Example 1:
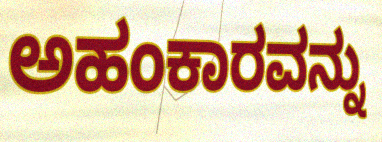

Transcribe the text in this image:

ಅಹಂಕಾರವನ್ನು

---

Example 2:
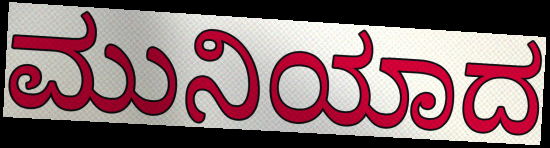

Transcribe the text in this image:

ಮುನಿಯಾದ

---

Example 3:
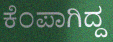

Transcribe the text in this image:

ಕೆಂಪಾಗಿದ್ದ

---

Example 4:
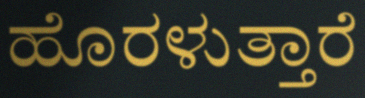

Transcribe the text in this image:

ಹೊರಳುತ್ತಾರೆ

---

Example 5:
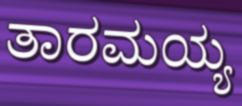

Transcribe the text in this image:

ತಾರಮಯ್ಯ